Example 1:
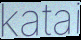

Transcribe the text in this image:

katai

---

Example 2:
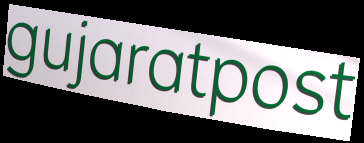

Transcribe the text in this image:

gujaratpost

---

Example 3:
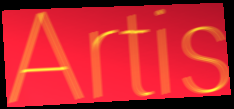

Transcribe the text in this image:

Artis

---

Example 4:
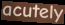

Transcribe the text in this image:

acutely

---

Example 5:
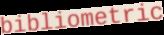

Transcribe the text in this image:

bibliometric